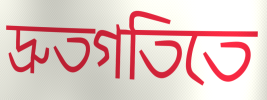
দ্রুতগতিতে